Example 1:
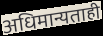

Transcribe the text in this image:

अधिमान्यताही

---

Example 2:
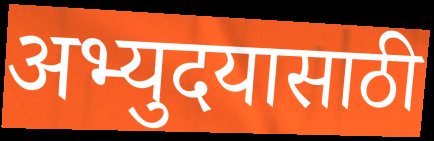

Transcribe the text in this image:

अभ्युदयासाठी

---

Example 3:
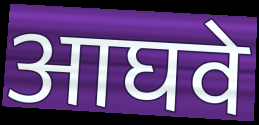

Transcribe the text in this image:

आघवे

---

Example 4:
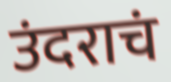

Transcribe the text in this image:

उंदराचं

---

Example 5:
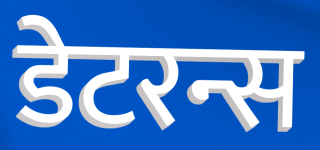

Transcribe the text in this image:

डेटरन्स